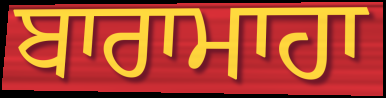
ਬਾਰਾਮਾਹਾ